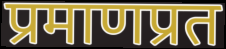
प्रमाणप्रत